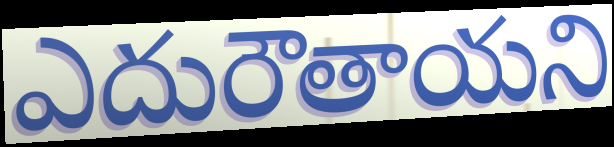
ఎదురౌతాయని